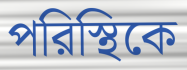
পরিস্থিকে